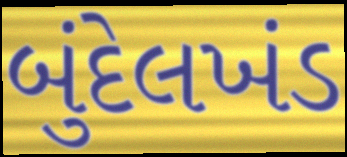
બુંદેલખંડ